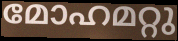
മോഹമറ്റു